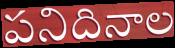
పనిదినాల